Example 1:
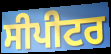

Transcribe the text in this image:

ਸੀਪੀਟਰ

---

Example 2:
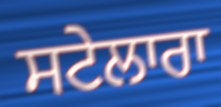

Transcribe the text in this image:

ਸਟੇਲਾਰਾ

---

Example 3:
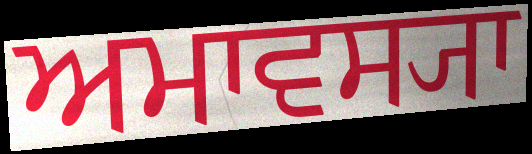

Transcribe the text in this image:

ਅਮਾਵਸ੍ਯਾ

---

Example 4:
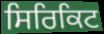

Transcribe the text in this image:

ਸਿਰਿਕਿਟ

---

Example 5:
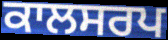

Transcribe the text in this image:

ਕਾਲਸਰਪ